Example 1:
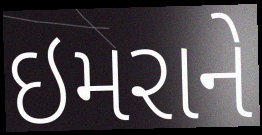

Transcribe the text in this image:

ઇમરાને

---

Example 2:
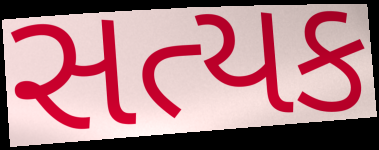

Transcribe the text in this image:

સત્યક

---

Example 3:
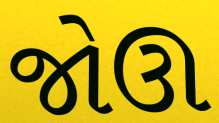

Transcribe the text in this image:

જોઊ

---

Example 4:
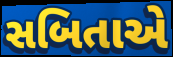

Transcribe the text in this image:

સબિતાએ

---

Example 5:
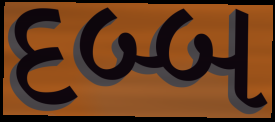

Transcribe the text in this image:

દબ્બ